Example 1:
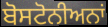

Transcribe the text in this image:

ਬੋਸਟੋਨੀਅਨਾਂ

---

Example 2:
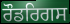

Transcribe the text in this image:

ਰੌਡਰਿਗਸ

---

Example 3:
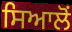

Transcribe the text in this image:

ਸਿਆਲੋਂ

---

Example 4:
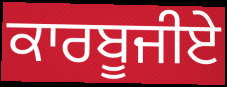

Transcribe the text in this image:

ਕਾਰਬੂਜੀਏ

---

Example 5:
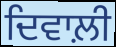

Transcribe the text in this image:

ਦਿਵਾਲ਼ੀ